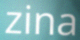
zina